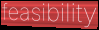
feasibility